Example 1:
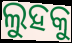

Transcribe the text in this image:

ଲୁହକୁ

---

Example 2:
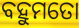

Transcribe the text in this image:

ବହୁମତୋ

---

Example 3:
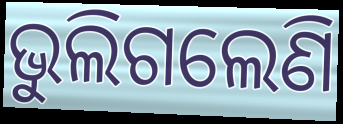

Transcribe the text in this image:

ଭୁଲିଗଲେଣି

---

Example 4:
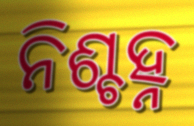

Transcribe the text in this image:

ନିଶ୍ଚହ୍ନ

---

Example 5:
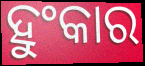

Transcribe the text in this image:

ହୁଂକାର